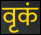
वृकं